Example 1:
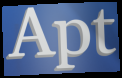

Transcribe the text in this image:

Apt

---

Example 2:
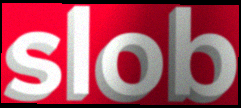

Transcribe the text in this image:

slob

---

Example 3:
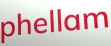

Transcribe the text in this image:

phellam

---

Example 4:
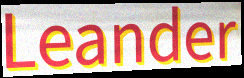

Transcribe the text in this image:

Leander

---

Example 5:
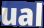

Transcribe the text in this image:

ual